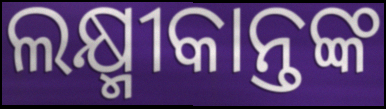
ଲକ୍ଷ୍ମୀକାନ୍ତଙ୍କ